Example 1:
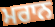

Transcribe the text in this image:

ਮਰਾਨ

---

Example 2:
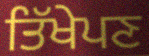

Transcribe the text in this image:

ਤਿੱਖੇਪਣ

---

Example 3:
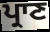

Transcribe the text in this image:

ਪ੍ਰਾਣ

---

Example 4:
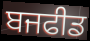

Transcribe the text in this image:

ਬਜਫੀਡ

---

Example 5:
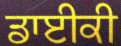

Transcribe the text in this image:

ਡਾਈਕੀ